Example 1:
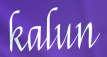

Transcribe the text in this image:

kalun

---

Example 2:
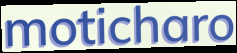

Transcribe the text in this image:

moticharo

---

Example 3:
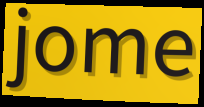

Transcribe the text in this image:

jome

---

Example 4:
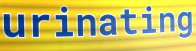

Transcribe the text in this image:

urinating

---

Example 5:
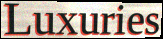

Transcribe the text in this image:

Luxuries